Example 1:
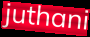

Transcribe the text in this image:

juthani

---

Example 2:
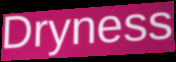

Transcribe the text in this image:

Dryness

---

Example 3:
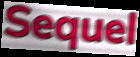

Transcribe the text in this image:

Sequel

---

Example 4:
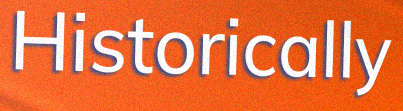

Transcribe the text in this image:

Historically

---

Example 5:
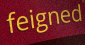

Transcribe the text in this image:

feigned